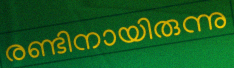
രണ്ടിനായിരുന്നു